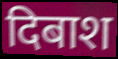
दिबाश